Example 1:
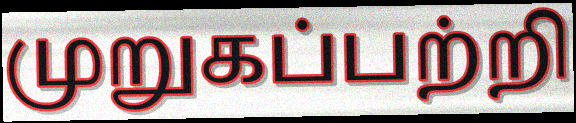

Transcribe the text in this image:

முறுகப்பற்றி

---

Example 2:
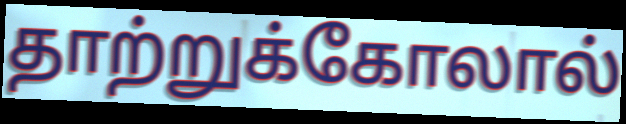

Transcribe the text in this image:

தாற்றுக்கோலால்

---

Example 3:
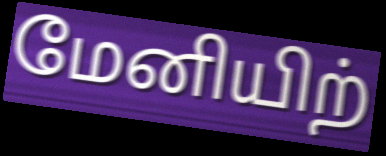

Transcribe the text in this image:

மேனியிற்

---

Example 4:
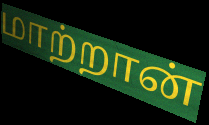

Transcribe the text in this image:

மாற்றான்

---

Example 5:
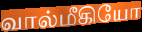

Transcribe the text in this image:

வால்மீகியோ